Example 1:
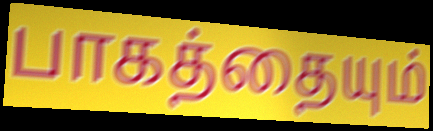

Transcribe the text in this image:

பாகத்தையும்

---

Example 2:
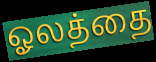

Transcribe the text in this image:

ஓலத்தை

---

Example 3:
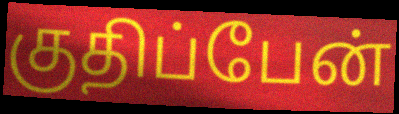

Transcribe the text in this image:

குதிப்பேன்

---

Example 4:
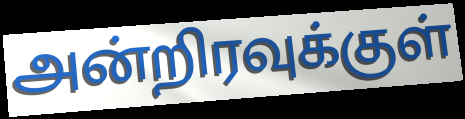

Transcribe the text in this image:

அன்றிரவுக்குள்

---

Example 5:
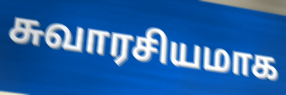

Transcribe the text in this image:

சுவாரசியமாக